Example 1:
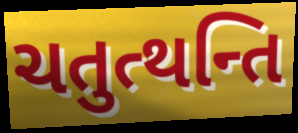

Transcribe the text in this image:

ચતુત્થન્તિ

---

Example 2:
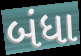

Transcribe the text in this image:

બંધા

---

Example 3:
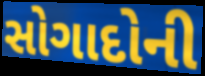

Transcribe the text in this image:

સોગાદોની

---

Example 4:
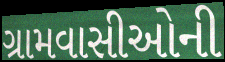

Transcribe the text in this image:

ગ્રામવાસીઓની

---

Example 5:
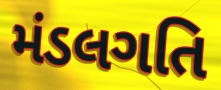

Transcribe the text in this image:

મંડલગતિ